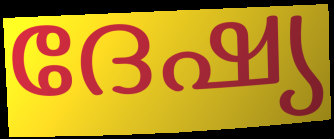
ദേഷ്യ